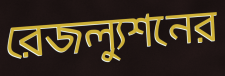
রেজল্যুশনের